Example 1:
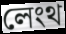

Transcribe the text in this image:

লেংথ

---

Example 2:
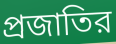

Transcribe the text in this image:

প্রজাতির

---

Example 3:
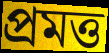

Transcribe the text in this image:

প্রমত্ত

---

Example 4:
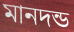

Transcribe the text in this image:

মানদন্ড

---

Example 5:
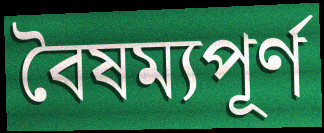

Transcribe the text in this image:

বৈষম্যপূর্ণ